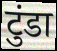
टुंडा